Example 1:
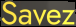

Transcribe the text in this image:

Savez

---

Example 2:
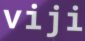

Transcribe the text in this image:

viji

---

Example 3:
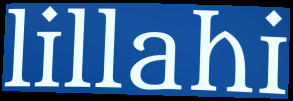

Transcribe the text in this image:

lillahi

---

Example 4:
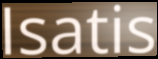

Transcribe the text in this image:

Isatis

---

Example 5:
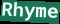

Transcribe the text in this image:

Rhyme